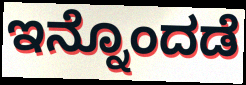
ಇನ್ನೊಂದಡೆ